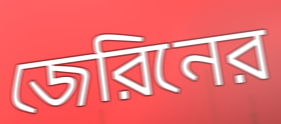
জেরিনের